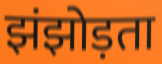
झंझोड़ता